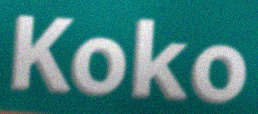
Koko